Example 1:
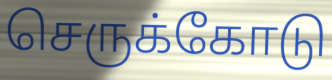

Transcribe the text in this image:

செருக்கோடு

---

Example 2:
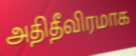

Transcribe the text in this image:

அதிதீவிரமாக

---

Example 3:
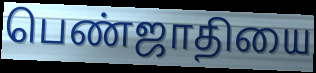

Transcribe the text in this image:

பெண்ஜாதியை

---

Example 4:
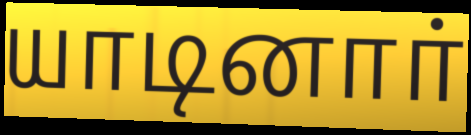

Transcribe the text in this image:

யாடினார்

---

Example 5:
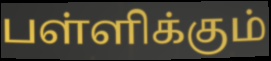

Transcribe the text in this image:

பள்ளிக்கும்